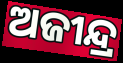
ଅଜୀନ୍ଦ୍ର